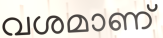
വശമാണ്